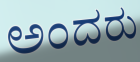
ಅಂದರು